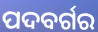
ପଦବର୍ଗର